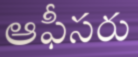
ఆఫీసరు